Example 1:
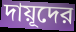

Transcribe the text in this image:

দায়ূদের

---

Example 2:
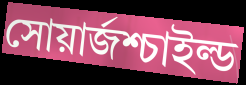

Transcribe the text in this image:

সোয়ার্জশ্চাইল্ড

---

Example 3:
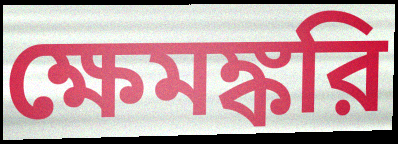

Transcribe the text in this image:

ক্ষেমঙ্করি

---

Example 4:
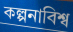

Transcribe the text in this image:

কল্পনাবিশ্ব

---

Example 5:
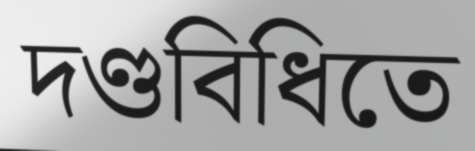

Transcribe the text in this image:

দণ্ডবিধিতে